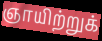
ஞாயிற்றுக்